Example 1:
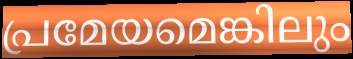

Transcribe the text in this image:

പ്രമേയമെങ്കിലും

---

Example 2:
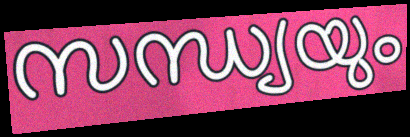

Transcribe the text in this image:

സന്ധ്യയും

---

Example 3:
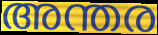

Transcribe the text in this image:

അന്തര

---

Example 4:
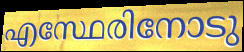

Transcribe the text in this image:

എസ്ഥേരിനോടു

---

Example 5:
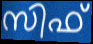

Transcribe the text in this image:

സിഫ്